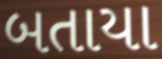
બતાયા